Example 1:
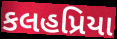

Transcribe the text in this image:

કલહપ્રિયા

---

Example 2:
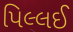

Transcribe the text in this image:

પિલ્લઈ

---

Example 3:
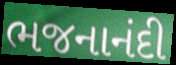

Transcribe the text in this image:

ભજનાનંદી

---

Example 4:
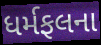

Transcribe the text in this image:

ધર્મફલના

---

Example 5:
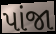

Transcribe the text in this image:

પાંજા